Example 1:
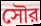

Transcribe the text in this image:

সৌর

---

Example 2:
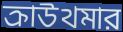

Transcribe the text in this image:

ক্রাউথমার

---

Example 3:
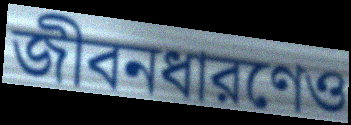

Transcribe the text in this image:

জীবনধারণেও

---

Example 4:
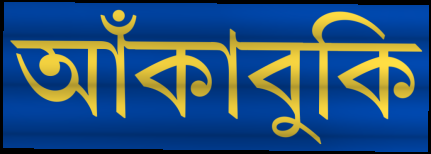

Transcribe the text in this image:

আঁকাবুকি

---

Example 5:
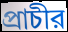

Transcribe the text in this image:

প্রাচীর